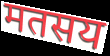
मतसय